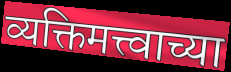
व्यक्तिमत्त्वाच्या